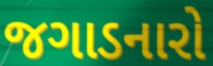
જગાડનારો